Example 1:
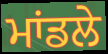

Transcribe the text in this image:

ਮਾਂਡਲੇ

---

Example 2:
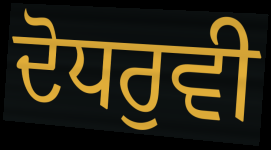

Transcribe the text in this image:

ਦੋਧਰੁਵੀ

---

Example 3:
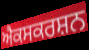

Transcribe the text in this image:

ਐਕਸਕਰਸ਼ਨ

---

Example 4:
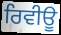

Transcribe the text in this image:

ਰਿਵੀਊ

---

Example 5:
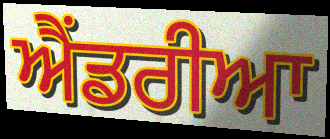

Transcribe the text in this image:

ਐਂਡਰੀਆ